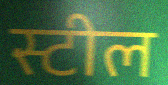
स्टील